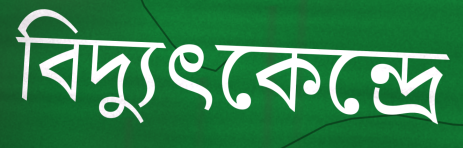
বিদ্যুৎকেন্দ্রে